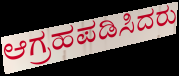
ಆಗ್ರಹಪಡಿಸಿದರು